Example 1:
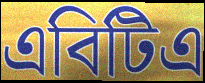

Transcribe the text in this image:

এবিটিএ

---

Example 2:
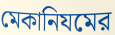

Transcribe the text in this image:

মেকানিযমের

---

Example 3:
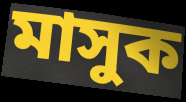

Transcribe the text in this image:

মাসুক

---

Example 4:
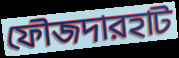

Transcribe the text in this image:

ফৌজদারহাট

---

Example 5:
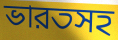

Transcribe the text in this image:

ভারতসহ